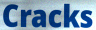
Cracks